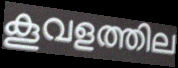
കൂവളത്തില